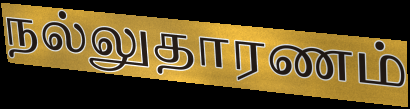
நல்லுதாரணம்